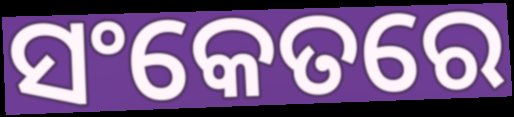
ସଂକେତରେ